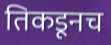
तिकडूनच